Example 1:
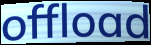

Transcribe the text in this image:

offload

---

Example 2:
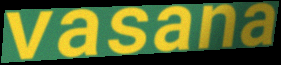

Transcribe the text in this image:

vasana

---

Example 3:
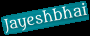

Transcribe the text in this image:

Jayeshbhai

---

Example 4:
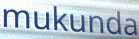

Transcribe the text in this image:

mukunda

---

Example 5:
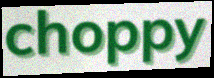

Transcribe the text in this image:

choppy